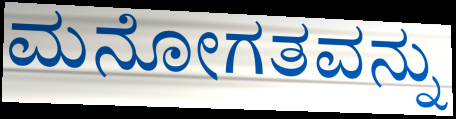
ಮನೋಗತವನ್ನು